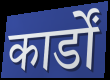
कार्डों